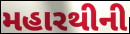
મહારથીની